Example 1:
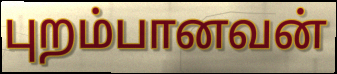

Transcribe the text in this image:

புறம்பானவன்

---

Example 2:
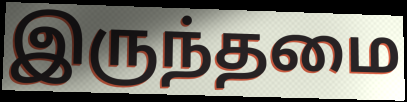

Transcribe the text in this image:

இருந்தமை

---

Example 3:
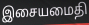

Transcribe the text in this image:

இசையமைதி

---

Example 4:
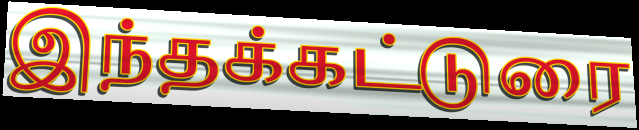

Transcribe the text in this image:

இந்தக்கட்டுரை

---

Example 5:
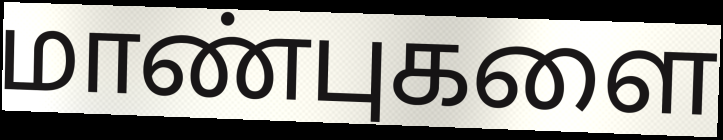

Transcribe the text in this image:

மாண்புகளை